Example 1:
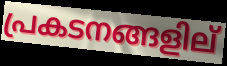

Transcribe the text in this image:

പ്രകടനങ്ങളില്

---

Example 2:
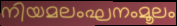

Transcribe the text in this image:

നിയമലംഘനംമൂലം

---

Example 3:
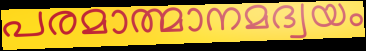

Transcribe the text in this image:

പരമാത്മാനമദ്വയം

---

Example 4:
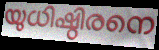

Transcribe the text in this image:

യുധിഷ്ഠിരനെ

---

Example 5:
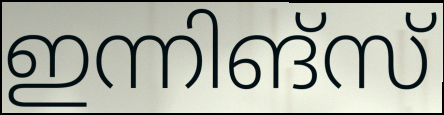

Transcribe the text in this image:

ഇന്നിങ്സ്